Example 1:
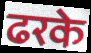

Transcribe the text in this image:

ढरके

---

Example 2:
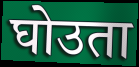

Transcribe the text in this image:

घोउता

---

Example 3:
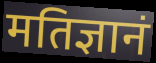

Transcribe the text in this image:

मतिज्ञानं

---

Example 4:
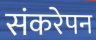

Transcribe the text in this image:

संकरेपन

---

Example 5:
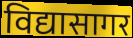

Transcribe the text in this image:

विद्यासागर